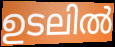
ഉടലിൽ